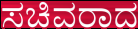
ಸಚಿವರಾದ